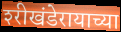
श्रीखंडेरायाच्या